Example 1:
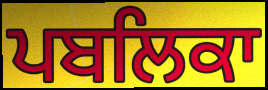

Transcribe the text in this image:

ਪਬਲਿਕਾ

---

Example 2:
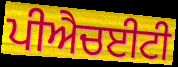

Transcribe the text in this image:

ਪੀਐਚਈਟੀ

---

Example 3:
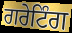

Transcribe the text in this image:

ਗਰੇਟਿੰਗ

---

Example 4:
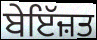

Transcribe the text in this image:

ਬੇਇੱਜ਼ਤ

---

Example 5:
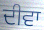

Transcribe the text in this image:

ਦੀਵਾ